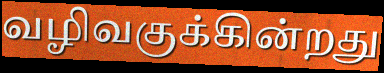
வழிவகுக்கின்றது